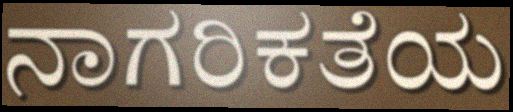
ನಾಗರಿಕತೆಯ